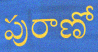
పురాణో